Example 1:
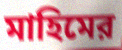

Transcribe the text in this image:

মাহিমের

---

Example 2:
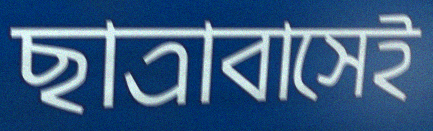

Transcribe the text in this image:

ছাত্রাবাসেই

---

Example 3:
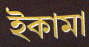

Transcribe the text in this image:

ইকামা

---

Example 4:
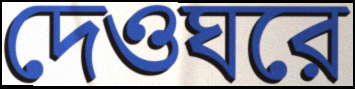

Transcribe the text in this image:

দেওঘরে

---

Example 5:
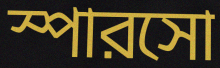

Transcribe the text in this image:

স্পারসো